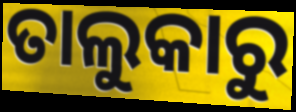
ତାଲୁକାରୁ